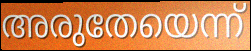
അരുതേയെന്ന്